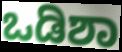
ಒಡಿಶಾ